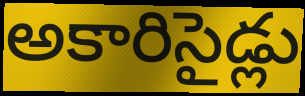
అకారిసైడ్లు